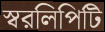
স্বরলিপিটি